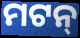
ମଟନ୍